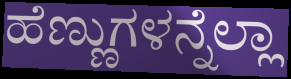
ಹೆಣ್ಣುಗಳನ್ನೆಲ್ಲಾ